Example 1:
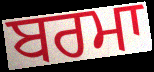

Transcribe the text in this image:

ਬਰਮਾ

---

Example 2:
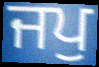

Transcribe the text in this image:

ਜਪੁ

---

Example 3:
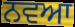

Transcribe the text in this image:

ਨਵਆ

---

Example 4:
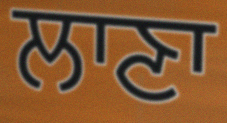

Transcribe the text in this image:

ਲਾਣਾ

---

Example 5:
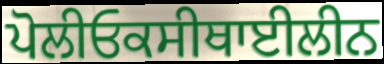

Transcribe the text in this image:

ਪੋਲੀਓਕਸੀਥਾਈਲੀਨ